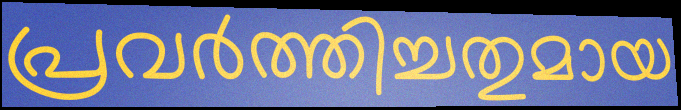
പ്രവർത്തിച്ചതുമായ